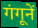
गंगूनें